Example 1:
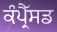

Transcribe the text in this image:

ਕੰਪ੍ਰੈੱਸਡ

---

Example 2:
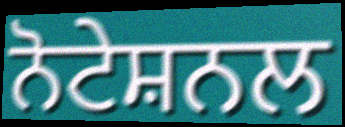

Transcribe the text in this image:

ਨੋਟੇਸ਼ਨਲ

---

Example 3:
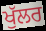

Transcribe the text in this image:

ਖੁੱਲਰ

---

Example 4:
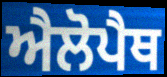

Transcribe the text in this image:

ਐਲੋਪੈਥ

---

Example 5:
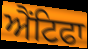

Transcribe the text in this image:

ਐਂਟਿਫਾ